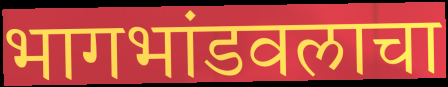
भागभांडवलाचा